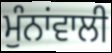
ਮੁੰਨਾਂਵਾਲੀ